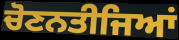
ਚੋਣਨਤੀਜਿਆਂ